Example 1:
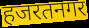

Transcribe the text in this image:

हजरतनगर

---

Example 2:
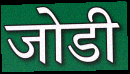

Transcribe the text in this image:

जोडी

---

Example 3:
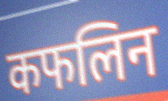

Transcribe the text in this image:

कफलिन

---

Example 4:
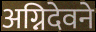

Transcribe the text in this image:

अग्निदेवने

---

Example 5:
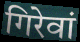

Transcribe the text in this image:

गिरेवां